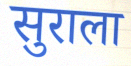
सुराला